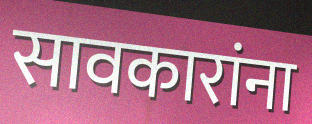
सावकारांना